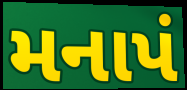
મનાપં